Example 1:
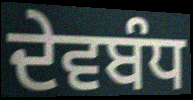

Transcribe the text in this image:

ਦੇਵਬੰਧ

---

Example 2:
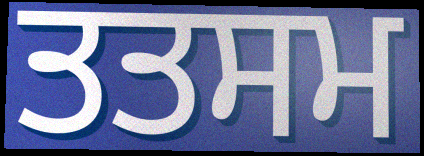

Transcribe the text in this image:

ਤਤਸਮ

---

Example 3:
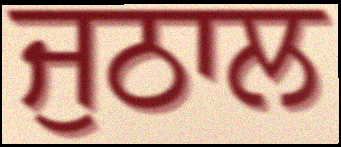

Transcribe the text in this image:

ਜੁਠਾਲ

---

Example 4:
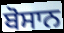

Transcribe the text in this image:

ਬੋਸਾਨ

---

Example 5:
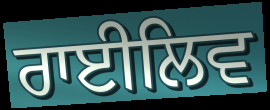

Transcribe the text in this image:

ਰਾਈਲਿਵ